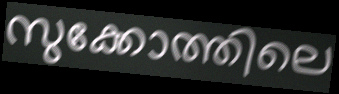
സുക്കോത്തിലെ